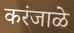
करंजाळे